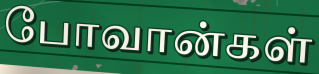
போவான்கள்